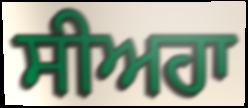
ਸੀਅਹਾ